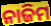
ନାଜିମ